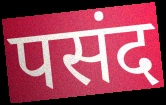
पसंद